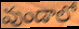
వుండాలో